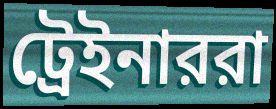
ট্রেইনাররা